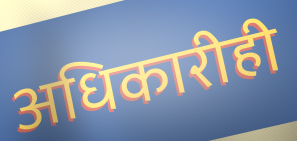
अधिकारीही